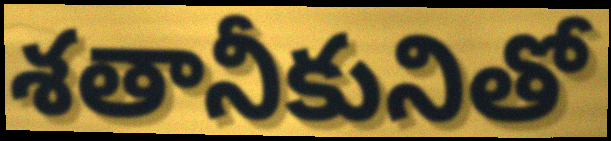
శతానీకునితో